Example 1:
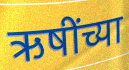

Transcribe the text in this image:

ऋषींच्या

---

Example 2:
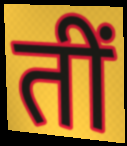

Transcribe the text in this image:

तीं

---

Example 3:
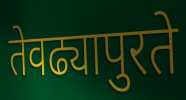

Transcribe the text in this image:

तेवढ्यापुरते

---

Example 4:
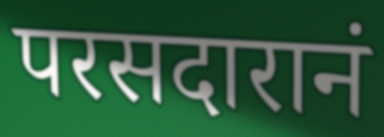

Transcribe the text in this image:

परसदारानं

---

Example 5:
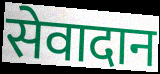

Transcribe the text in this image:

सेवादान